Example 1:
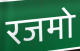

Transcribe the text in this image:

रजमो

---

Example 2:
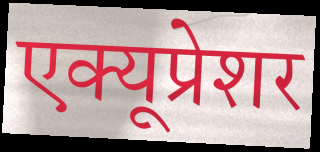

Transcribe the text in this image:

एक्यूप्रेशर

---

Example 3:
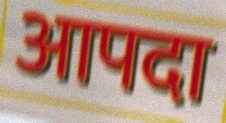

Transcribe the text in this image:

आपदा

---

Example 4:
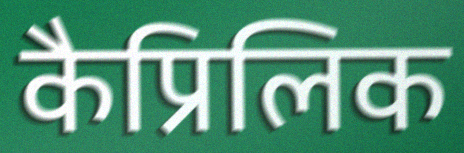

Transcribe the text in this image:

कैप्रिलिक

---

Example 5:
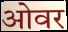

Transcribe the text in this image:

ओवर